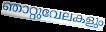
ഞാറ്റുവേലകളും